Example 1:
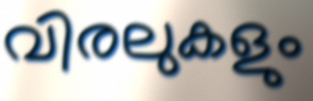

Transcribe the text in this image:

വിരലുകളും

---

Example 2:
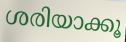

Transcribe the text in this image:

ശരിയാക്കൂ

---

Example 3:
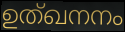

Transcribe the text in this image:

ഉത്ഖനനം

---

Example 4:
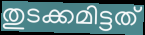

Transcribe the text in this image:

തുടക്കമിട്ടത്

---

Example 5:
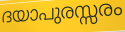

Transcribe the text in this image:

ദയാപുരസ്സരം